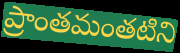
ప్రాంతమంతటిని